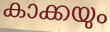
കാക്കയും